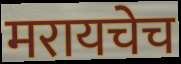
मरायचेच